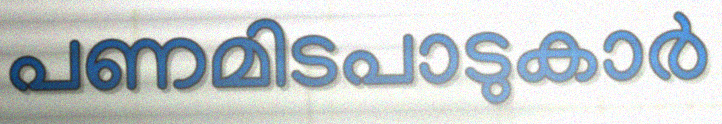
പണമിടപാടുകാർ